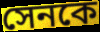
সেনকে